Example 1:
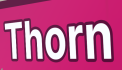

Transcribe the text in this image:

Thorn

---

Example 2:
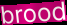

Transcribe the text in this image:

brood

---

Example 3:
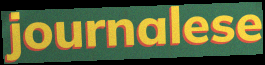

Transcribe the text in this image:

journalese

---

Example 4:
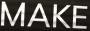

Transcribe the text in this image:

MAKE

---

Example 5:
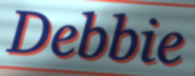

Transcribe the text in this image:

Debbie